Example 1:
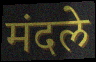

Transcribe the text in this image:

मंदले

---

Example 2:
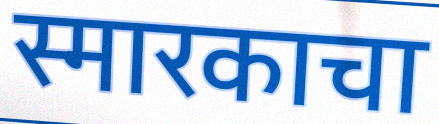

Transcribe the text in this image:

स्मारकाचा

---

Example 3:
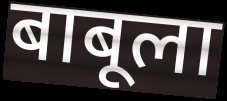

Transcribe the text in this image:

बाबूला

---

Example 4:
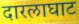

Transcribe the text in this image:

दारलाघाट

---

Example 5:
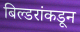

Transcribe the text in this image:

बिल्डरांकडून